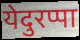
येदुरप्पा